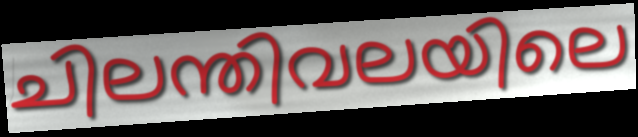
ചിലന്തിവലയിലെ